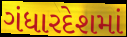
ગંધારદેશમાં